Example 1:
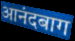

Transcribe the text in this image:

आनंदबाग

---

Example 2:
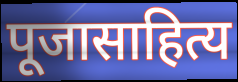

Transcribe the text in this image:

पूजासाहित्य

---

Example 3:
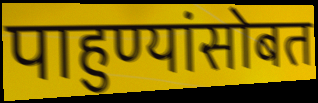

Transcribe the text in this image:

पाहुण्यांसोबत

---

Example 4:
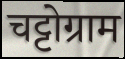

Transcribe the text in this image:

चट्टोग्राम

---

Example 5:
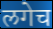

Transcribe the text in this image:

लगेच